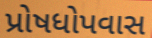
પ્રોષધોપવાસ